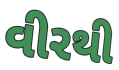
વીરથી